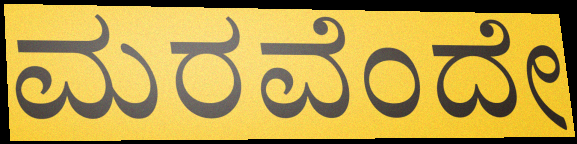
ಮರವೆಂದೇ